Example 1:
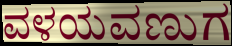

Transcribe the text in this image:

ವಳಯವಣುಗ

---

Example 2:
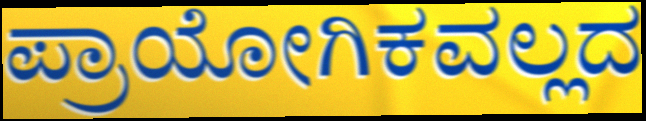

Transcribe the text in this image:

ಪ್ರಾಯೋಗಿಕವಲ್ಲದ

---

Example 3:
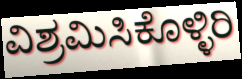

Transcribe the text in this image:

ವಿಶ್ರಮಿಸಿಕೊಳ್ಳಿರಿ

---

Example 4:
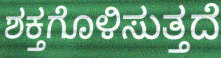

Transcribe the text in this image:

ಶಕ್ತಗೊಳಿಸುತ್ತದೆ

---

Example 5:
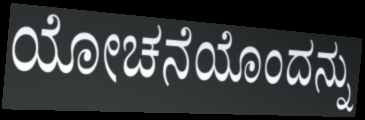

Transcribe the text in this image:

ಯೋಚನೆಯೊಂದನ್ನು